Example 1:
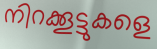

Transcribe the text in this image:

നിറക്കൂട്ടുകളെ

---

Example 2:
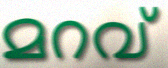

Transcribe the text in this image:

മറവ്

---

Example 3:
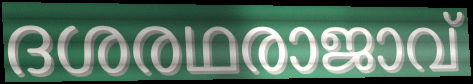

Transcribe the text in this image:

ദശരഥരാജാവ്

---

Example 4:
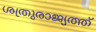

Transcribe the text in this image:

ശത്രുരാജ്യത്ത്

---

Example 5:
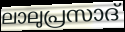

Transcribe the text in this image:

ലാലുപ്രസാദ്